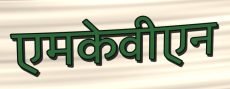
एमकेवीएन